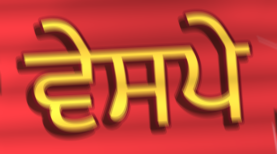
ਵੇਸਪੇ